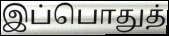
இப்பொதுத்